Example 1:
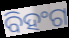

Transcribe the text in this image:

ବିହଂଗ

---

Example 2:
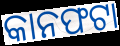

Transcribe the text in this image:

କାନଫଟା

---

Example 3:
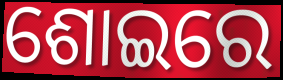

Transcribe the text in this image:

ଶୋଇରେ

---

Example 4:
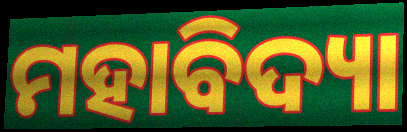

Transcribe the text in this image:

ମହାବିଦ୍ୟା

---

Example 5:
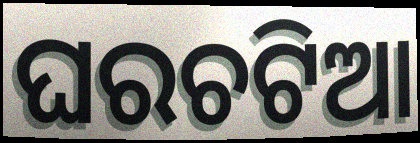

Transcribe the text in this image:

ଘରଚଟିଆ